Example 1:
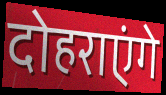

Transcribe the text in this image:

दोहराएंगे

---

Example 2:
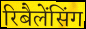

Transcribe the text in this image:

रिबैलेंसिंग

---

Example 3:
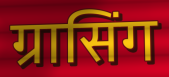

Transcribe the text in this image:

ग्रासिंग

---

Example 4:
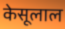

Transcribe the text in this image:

केसूलाल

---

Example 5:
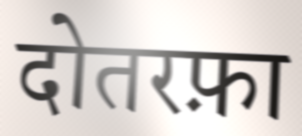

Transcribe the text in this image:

दोतरफ़ा